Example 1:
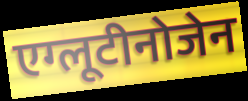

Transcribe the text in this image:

एग्लूटीनोजेन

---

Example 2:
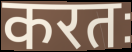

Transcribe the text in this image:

करतः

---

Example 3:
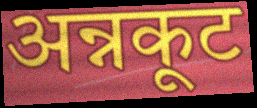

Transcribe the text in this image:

अन्नकूट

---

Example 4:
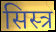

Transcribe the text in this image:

सिस्त्र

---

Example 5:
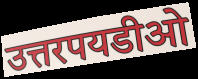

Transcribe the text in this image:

उत्तरपयडीओ